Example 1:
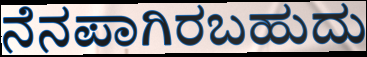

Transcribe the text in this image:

ನೆನಪಾಗಿರಬಹುದು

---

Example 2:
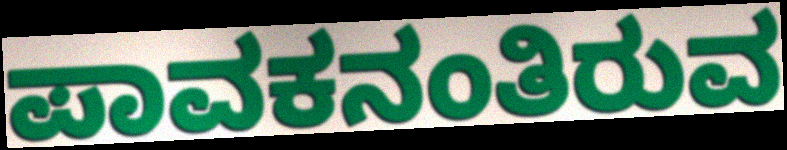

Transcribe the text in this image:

ಪಾವಕನಂತಿರುವ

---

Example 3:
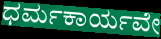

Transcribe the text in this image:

ಧರ್ಮಕಾರ್ಯವೇ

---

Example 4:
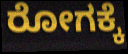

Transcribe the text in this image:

ರೋಗಕ್ಕೆ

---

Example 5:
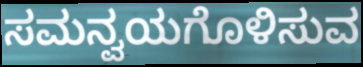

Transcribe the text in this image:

ಸಮನ್ವಯಗೊಳಿಸುವ